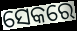
ସେକରେ